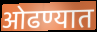
ओढण्यात